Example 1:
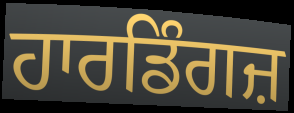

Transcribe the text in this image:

ਹਾਰਡਿੰਗਜ਼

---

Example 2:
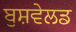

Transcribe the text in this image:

ਬੁਸ਼ਵੇਲਡ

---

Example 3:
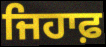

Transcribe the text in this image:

ਜਿਹਾਫ਼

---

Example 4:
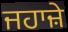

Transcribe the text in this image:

ਜਹਾਜ਼ੇ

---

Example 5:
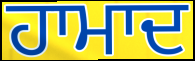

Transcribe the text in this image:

ਹਾਮਾਦ